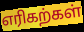
எரிகற்கள்